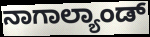
ನಾಗಾಲ್ಯಾಂಡ್